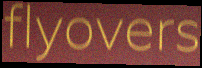
flyovers